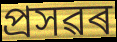
প্ৰসৱৰ